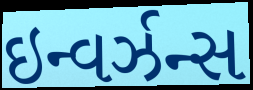
ઇન્વર્ઝન્સ